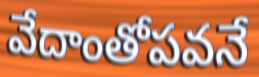
వేదాంతోపవనే